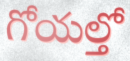
గోయల్తో